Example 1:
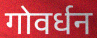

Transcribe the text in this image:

गोवर्धन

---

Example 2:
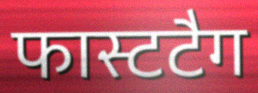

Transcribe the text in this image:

फास्टटैग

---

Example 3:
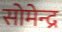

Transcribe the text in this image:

सोमेन्द्र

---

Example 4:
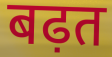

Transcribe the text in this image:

बढ़त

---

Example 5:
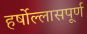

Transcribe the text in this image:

हर्षोल्लासपूर्ण